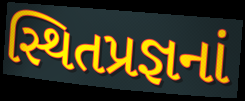
સ્થિતપ્રજ્ઞનાં